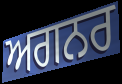
ਅਗਨਰ